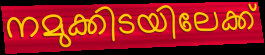
നമുക്കിടയിലേക്ക്